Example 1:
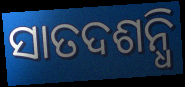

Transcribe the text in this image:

ସାତଦଶନ୍ଧି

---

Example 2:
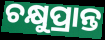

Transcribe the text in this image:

ଚକ୍ଷୁପ୍ରାନ୍ତ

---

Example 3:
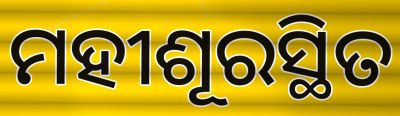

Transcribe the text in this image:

ମହୀଶୂରସ୍ଥିତ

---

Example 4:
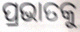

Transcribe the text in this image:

ପ୍ରଭାତକୁ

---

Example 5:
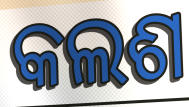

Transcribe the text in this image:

କଲଶ